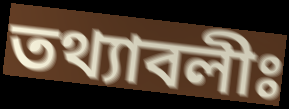
তথ্যাবলীঃ